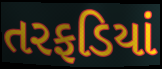
તરફડિયાં